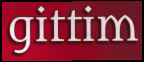
gittim